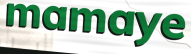
mamaye